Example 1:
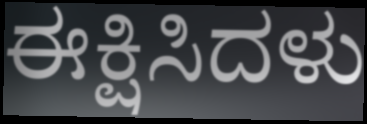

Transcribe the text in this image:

ಈಕ್ಷಿಸಿದಳು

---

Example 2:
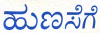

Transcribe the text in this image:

ಹುಣಸೆಗೆ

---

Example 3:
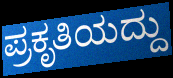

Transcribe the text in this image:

ಪ್ರಕೃತಿಯದ್ದು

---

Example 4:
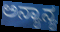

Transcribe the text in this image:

ಅನ್ಯಾನ್ಯ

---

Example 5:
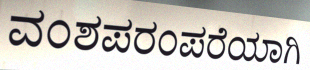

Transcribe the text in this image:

ವಂಶಪರಂಪರೆಯಾಗಿ